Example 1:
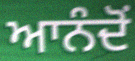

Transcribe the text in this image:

ਆਨੰਦੋਂ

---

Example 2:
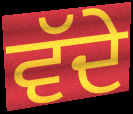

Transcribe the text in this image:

ਵੱਦੇ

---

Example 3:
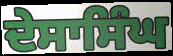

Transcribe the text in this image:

ਦੇਸਾਸਿੰਘ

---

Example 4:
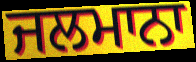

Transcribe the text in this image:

ਜਲਮਾਨਾ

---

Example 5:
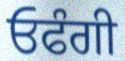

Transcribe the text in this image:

ਓਫੰਗੀ